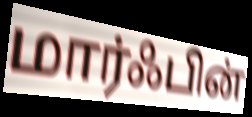
மார்ஃபின்